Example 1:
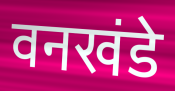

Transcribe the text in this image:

वनखंडे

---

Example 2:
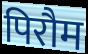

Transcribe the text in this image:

पिरौम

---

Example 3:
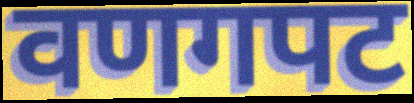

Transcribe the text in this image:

वणगपट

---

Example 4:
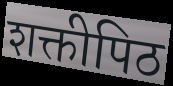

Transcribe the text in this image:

शक्तीपिठ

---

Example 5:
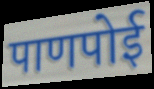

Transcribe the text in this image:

पाणपोई